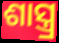
ଶାସ୍ତ୍ର୍ର